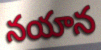
నయాన